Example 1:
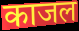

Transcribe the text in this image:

काजल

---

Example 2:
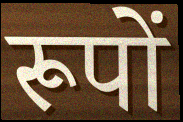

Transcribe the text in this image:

रूपों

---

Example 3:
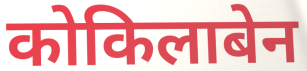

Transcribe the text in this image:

कोकिलाबेन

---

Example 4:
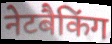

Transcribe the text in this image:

नेटबैकिंग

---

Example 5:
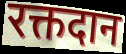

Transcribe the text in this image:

रक्तदान